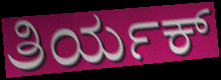
ತಿರ್ಯಕ್